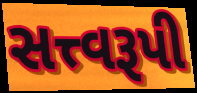
સત્ત્વરૂપી